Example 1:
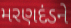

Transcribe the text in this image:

મરણદંડને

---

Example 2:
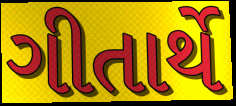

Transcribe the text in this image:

ગીતાર્થે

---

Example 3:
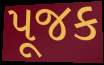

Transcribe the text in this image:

પૂજક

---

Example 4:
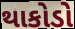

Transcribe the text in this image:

થાકોડો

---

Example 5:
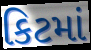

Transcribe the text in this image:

કિટમાં